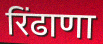
रिंढाणा